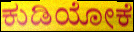
ಕುಡಿಯೋಕೆ